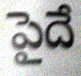
పైదే